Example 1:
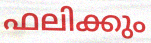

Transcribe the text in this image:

ഫലിക്കും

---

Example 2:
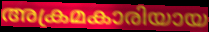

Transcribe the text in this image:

അക്രമകാരിയായ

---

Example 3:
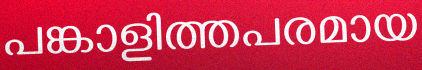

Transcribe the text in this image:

പങ്കാളിത്തപരമായ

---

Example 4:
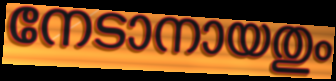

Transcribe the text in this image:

നേടാനായതും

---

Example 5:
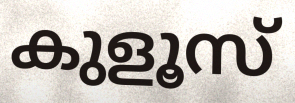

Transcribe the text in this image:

കുളൂസ്